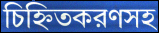
চিহ্নিতকরণসহ